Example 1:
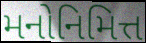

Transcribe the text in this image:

મનોનિમિત્ત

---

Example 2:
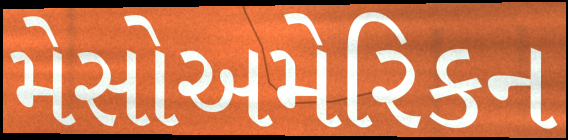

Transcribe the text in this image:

મેસોઅમેરિકન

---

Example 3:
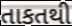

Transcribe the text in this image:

તાકતથી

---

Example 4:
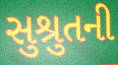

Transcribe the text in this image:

સુશ્રુતની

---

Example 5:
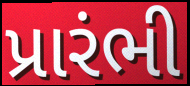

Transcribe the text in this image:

પ્રારંભી